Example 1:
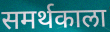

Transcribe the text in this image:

समर्थकाला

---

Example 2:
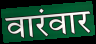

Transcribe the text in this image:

वारंवार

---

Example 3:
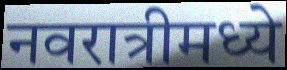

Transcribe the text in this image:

नवरात्रीमध्ये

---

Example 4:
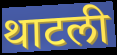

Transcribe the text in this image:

थाटली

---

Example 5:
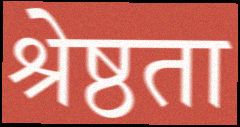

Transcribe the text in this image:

श्रेष्ठता